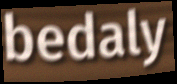
bedaly